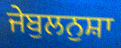
ਜੇਬੁਲਨੁਸ਼ਾ